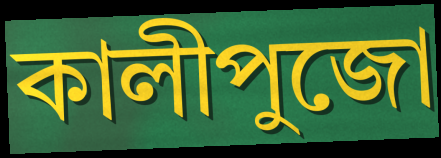
কালীপুজো